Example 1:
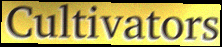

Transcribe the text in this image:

Cultivators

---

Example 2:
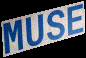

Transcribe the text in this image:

MUSE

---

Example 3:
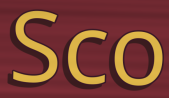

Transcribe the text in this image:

Sco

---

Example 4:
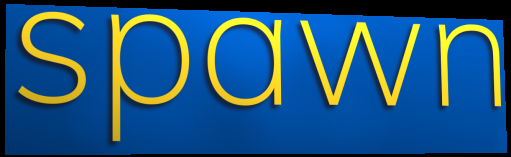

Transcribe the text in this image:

spawn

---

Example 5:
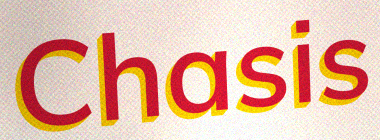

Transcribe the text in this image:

Chasis